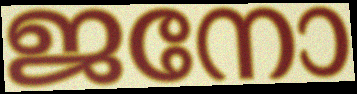
ജനോ